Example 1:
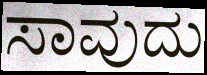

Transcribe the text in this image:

ಸಾವುದು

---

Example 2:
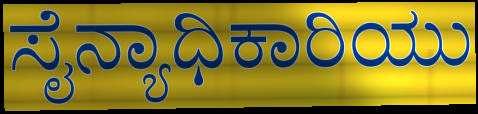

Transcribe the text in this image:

ಸೈನ್ಯಾಧಿಕಾರಿಯು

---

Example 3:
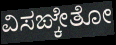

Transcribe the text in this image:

ವಿಸಙ್ಕೇತೋ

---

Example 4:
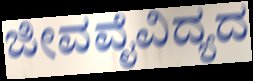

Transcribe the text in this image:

ಜೀವವೈವಿದ್ಯದ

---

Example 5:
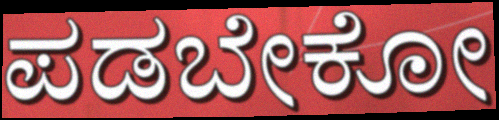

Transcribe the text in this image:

ಪಡಬೇಕೋ